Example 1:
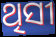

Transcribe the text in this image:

ଥିସୀ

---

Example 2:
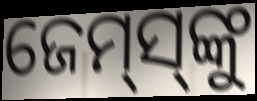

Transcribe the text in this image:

ଜେମ୍‌ସ୍‌ଙ୍କୁ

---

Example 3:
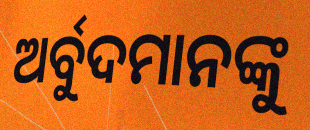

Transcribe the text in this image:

ଅର୍ବୁଦମାନଙ୍କୁ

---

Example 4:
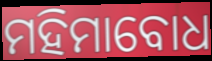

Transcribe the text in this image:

ମହିମାବୋଧ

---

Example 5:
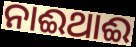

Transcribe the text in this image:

ନାଈଥାଈ